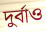
দুর্বাও